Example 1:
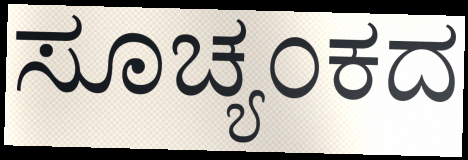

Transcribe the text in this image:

ಸೂಚ್ಯಂಕದ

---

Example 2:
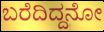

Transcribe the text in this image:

ಬರೆದಿದ್ದನೋ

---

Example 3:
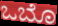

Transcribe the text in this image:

ಒಬೊ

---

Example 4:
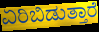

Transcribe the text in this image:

ಏರಿಬಿಡುತ್ತಾರೆ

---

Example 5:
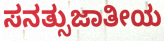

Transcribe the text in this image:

ಸನತ್ಸುಜಾತೀಯ